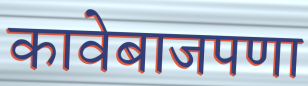
कावेबाजपणा